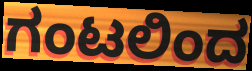
ಗಂಟಲಿಂದ